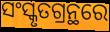
ସଂସ୍କୃତଗ୍ରନ୍ଥରେ